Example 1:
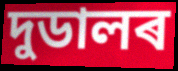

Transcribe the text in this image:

দুডালৰ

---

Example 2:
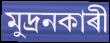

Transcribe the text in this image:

মুদ্ৰনকাৰী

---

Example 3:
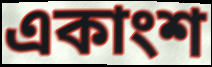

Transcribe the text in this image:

একাংশ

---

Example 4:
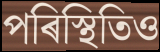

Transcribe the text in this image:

পৰিস্থিতিও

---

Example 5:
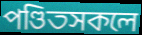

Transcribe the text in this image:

পণ্ডিতসকলে